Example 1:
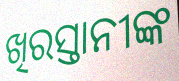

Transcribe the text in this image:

ଖିରସ୍ତାନୀଙ୍କ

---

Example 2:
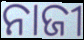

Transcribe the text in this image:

ନାଜୀ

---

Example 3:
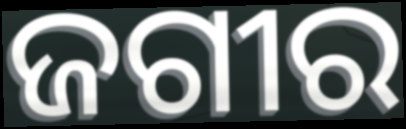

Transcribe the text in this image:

ଜଗୀର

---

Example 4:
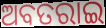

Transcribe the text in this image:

ଅବତରାଇ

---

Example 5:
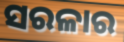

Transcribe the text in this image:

ସରଳାର